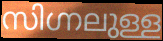
സിഗ്നലുള്ള